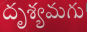
దృశ్యమగు